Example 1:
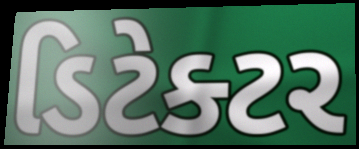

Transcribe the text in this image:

ડિટેક્ટર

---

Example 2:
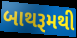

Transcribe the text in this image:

બાથરૂમથી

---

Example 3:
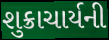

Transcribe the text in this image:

શુક્રાચાર્યની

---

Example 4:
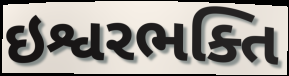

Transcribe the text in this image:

ઇશ્વરભક્તિ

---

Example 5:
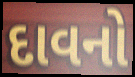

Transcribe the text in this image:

દાવનો